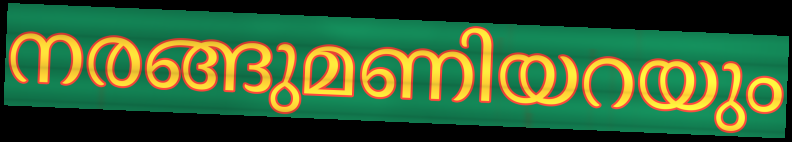
നരങ്ങുമണിയറയും